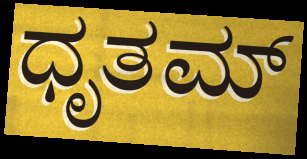
ಧೃತಮ್